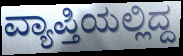
ವ್ಯಾಪ್ತಿಯಲ್ಲಿದ್ದ